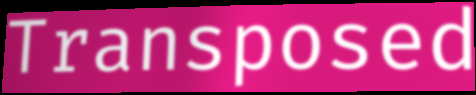
Transposed